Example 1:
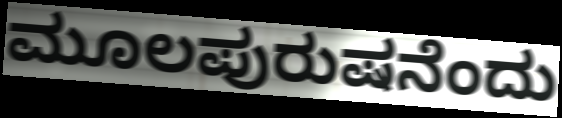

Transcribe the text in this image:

ಮೂಲಪುರುಷನೆಂದು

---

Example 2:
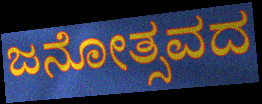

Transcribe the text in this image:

ಜನೋತ್ಸವದ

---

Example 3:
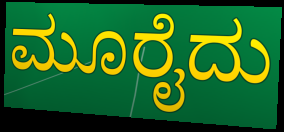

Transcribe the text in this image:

ಮೂರೈದು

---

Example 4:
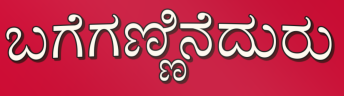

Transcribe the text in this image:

ಬಗೆಗಣ್ಣಿನೆದುರು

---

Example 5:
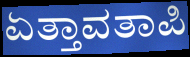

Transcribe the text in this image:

ಏತ್ತಾವತಾಪಿ